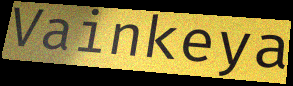
Vainkeya